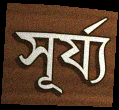
সূর্য্য